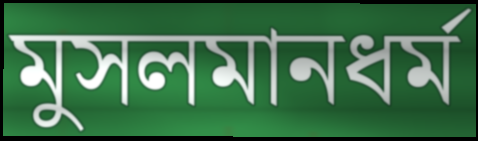
মুসলমানধর্ম